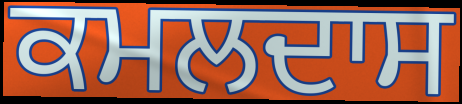
ਕਮਲਦਾਸ